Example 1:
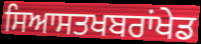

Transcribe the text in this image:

ਸਿਆਸਤਖਬਰਾਂਖੇਡ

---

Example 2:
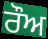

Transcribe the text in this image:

ਰੌਅ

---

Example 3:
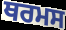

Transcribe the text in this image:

ਥਰਮਸ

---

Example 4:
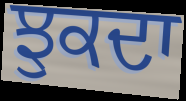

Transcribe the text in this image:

ਝੁਕਦਾ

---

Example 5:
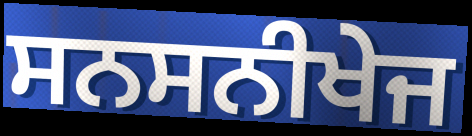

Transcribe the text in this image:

ਸਨਸਨੀਖੇਜ